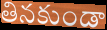
తినకుండా